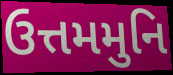
ઉત્તમમુનિ